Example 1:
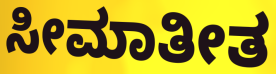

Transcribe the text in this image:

ಸೀಮಾತೀತ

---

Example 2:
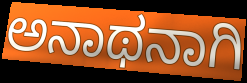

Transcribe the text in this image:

ಅನಾಥನಾಗಿ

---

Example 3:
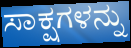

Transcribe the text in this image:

ಸಾಕ್ಷಗಳನ್ನು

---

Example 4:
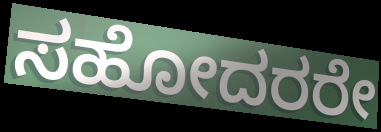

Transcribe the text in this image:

ಸಹೋದರರೇ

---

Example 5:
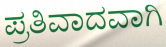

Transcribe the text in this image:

ಪ್ರತಿವಾದವಾಗಿ